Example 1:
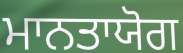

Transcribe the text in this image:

ਮਾਨਤਾਯੋਗ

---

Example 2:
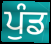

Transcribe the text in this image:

ਪੁੰਡ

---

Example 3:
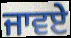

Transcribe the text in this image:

ਜਾਵਏ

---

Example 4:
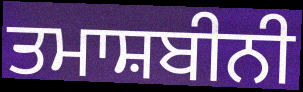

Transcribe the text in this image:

ਤਮਾਸ਼ਬੀਨੀ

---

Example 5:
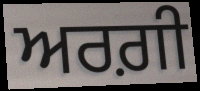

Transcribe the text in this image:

ਅਰਗ਼ੀ